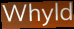
Whyld